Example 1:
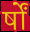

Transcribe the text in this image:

र्षों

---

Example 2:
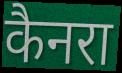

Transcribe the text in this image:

कैनरा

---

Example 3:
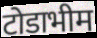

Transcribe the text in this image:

टोडाभीम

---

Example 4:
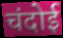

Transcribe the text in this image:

चंदोई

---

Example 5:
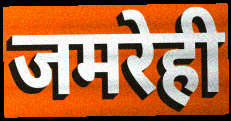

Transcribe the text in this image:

जमरेही